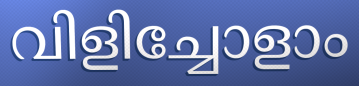
വിളിച്ചോളാം